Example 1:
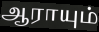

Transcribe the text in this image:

ஆராயும்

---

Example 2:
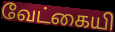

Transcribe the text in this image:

வேட்கையி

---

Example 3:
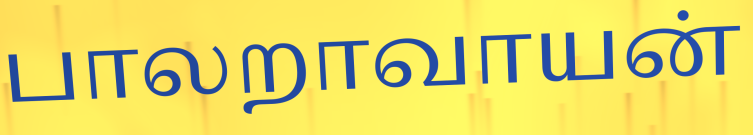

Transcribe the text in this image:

பாலறாவாயன்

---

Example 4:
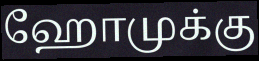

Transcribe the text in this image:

ஹோமுக்கு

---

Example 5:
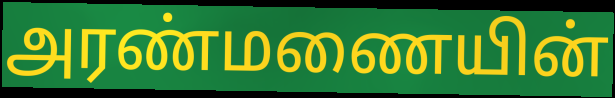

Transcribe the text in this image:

அரண்மணையின்